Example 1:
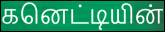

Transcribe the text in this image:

கனெட்டியின்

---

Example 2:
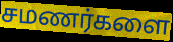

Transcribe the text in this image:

சமணர்களை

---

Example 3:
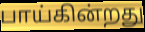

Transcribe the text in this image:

பாய்கின்றது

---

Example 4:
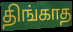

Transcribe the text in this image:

திங்காத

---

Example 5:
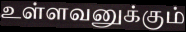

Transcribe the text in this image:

உள்ளவனுக்கும்